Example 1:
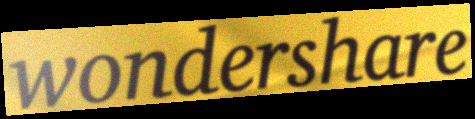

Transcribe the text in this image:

wondershare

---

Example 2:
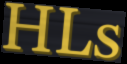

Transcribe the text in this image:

HLs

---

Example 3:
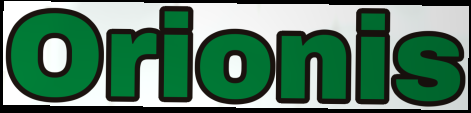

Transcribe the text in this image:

Orionis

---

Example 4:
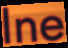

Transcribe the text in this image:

Ine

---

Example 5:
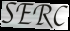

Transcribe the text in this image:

SERC